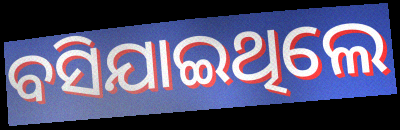
ବସିଯାଇଥିଲେ